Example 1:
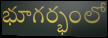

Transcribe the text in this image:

భూగర్భంలో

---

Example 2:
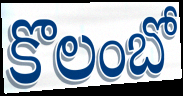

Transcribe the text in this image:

కొలంబో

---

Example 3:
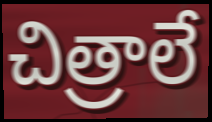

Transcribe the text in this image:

చిత్రాలే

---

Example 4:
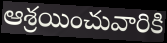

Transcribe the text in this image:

ఆశ్రయించువారికి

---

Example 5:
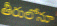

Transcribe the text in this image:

తీరులోనూ